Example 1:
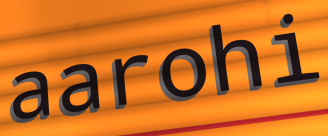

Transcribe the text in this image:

aarohi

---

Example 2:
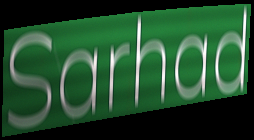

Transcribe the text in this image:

Sarhad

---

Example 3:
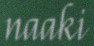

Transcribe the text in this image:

naaki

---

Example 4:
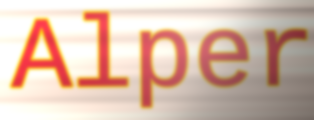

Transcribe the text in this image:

Alper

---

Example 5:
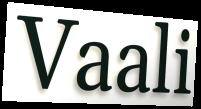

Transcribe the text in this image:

Vaali